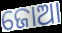
ଜୋଆ